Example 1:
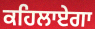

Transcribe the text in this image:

ਕਹਿਲਾਏਗਾ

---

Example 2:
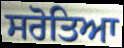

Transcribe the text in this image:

ਸਰੋਤਿਆ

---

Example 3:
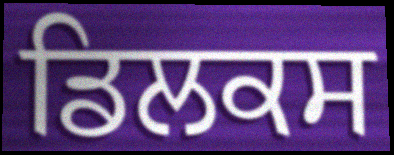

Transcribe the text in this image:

ਡਿਲਕਸ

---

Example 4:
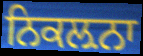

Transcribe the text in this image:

ਨਿਕਲ਼ਨਾ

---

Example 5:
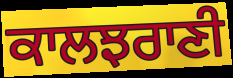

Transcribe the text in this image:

ਕਾਲਝਰਾਣੀ